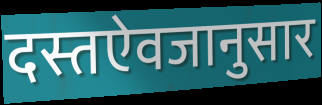
दस्तऐवजानुसार